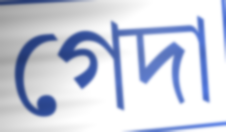
গেদা